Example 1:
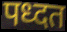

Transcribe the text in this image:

पध्दत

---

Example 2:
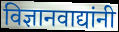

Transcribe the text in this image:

विज्ञानवाद्यांनी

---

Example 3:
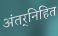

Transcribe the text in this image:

अंतर्निहित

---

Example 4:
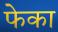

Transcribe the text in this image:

फेका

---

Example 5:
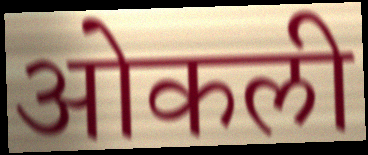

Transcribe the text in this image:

ओकली